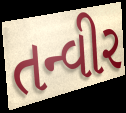
તન્વીર